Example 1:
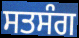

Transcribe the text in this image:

ਸਤਸੰਗ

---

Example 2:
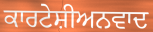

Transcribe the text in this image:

ਕਾਰਟੇਸ਼ੀਅਨਵਾਦ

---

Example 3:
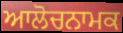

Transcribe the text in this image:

ਆਲੋਚਨਾਮਕ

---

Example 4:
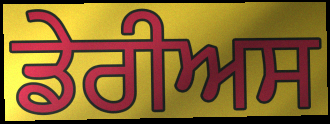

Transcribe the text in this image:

ਡੇਰੀਅਸ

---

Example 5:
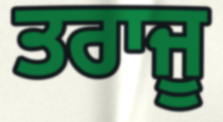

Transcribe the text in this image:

ਤਰਾਜੂ